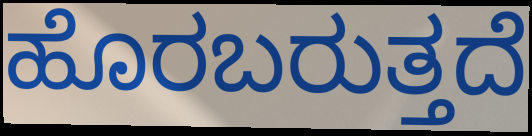
ಹೊರಬರುತ್ತದೆ